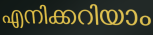
എനിക്കറിയാം